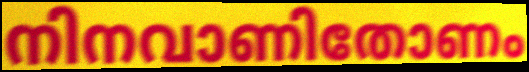
നിനവാണിതോണം